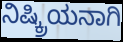
ನಿಷ್ಕ್ರಿಯನಾಗಿ